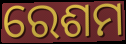
ରେଶମ